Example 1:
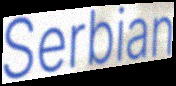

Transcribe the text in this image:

Serbian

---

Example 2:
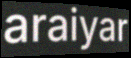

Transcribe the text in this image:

araiyar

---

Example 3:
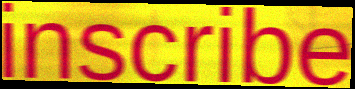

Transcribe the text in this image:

inscribe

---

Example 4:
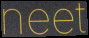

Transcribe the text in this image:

neet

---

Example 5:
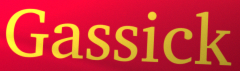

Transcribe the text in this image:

Gassick